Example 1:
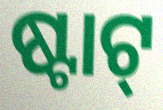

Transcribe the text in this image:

ଷ୍ଟାଟ୍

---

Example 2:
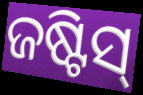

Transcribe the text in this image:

ଜଷ୍ଟିସ୍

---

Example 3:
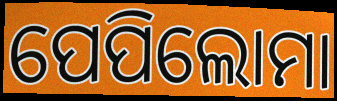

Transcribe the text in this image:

ପେପିଲୋମା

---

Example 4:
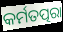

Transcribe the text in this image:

କର୍ମତତ୍ପରା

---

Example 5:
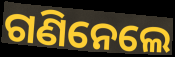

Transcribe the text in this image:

ଗଣିନେଲେ